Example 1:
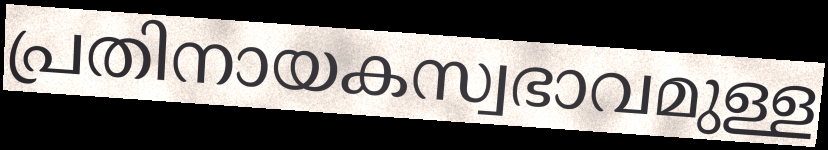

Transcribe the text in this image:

പ്രതിനായകസ്വഭാവമുള്ള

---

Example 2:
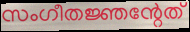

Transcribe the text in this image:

സംഗീതജ്ഞന്റേത്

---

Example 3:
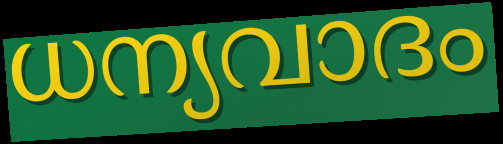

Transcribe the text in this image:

ധന്യവാദം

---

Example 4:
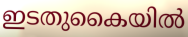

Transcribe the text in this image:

ഇടതുകൈയിൽ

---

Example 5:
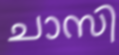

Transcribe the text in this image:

ചാസി